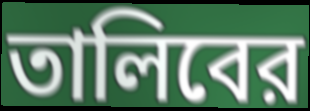
তালিবের